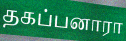
தகப்பனாரா